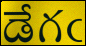
డేగఁ